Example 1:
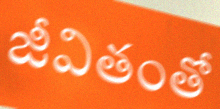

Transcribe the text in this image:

జీవితంతో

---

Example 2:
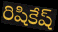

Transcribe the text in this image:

రిషికేష్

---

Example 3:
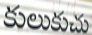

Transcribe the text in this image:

కులుకుచు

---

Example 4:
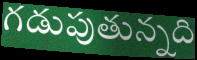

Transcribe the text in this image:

గడుపుతున్నది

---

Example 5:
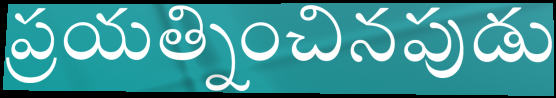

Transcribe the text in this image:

ప్రయత్నించినపుడు